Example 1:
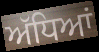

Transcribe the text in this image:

ਅੱਧਿਆਂ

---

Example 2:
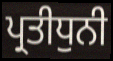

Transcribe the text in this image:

ਪ੍ਰਤੀਧੁਨੀ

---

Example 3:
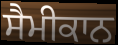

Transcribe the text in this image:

ਸੈਮੀਕਾਨ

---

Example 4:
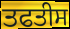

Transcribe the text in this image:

ਤਫਤੀਸ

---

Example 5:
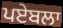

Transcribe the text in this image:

ਪਏਬਲਾ